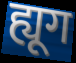
ह्यूग